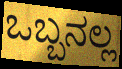
ಒಬ್ಬನಲ್ಲ